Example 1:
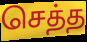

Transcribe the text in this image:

செத்த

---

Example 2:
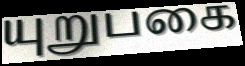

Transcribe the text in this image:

யுறுபகை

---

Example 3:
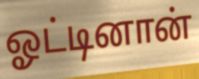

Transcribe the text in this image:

ஓட்டினான்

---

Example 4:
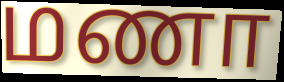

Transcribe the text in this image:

மணா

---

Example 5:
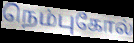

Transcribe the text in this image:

நெம்புகோல்